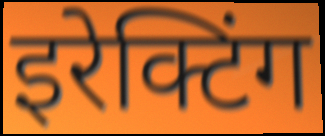
इरेक्टिंग